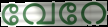
വേറേ